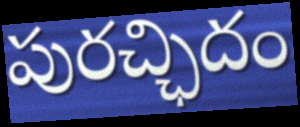
పురచ్ఛిదం